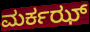
ಮರ್ಕಝ್